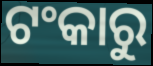
ଟଂକାରୁ